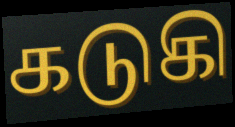
கடுகி